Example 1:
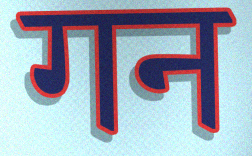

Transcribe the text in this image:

गन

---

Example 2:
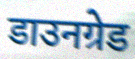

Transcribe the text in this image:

डाउनग्रेड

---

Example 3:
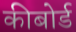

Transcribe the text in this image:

कीबोर्ड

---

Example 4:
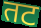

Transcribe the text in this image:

तट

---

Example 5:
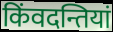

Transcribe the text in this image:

किंवदन्तियां